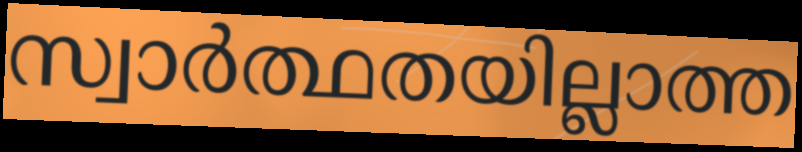
സ്വാർത്ഥതയില്ലാത്ത